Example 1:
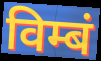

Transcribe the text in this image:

विम्बं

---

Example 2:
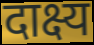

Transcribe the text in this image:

दाक्ष्य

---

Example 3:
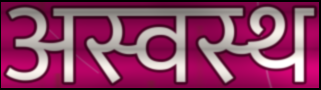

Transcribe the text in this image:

अस्वस्थ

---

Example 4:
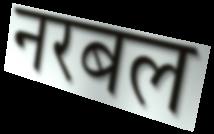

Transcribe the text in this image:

नरबल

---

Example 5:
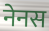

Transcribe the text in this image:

नेनस